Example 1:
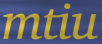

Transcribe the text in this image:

mtiu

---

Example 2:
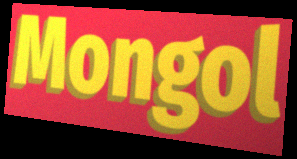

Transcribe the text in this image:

Mongol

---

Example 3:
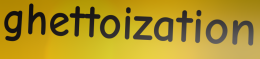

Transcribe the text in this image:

ghettoization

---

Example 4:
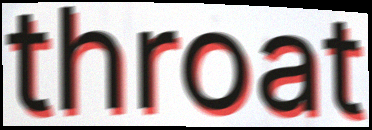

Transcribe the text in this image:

throat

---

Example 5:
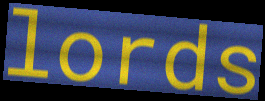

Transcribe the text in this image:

lords